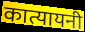
कात्यायनी